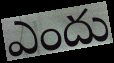
ఎందు